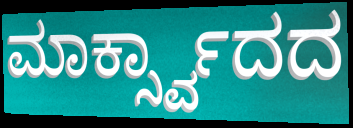
ಮಾರ್ಕ್ಸ್ವಾದದ